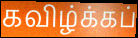
கவிழ்க்கப்